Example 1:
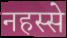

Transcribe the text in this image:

नहस्से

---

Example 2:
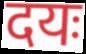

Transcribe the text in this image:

दयः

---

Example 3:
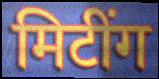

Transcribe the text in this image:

मिटींग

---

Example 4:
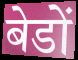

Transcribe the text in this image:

बेडों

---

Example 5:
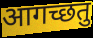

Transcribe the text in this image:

आगच्छतु